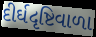
દીર્ઘદૃષ્ટિવાળા